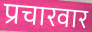
प्रचारवार